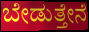
ಬೇಡುತ್ತೇನೆ